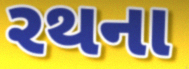
રથના